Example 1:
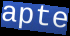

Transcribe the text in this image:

apte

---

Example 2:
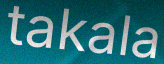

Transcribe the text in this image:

takala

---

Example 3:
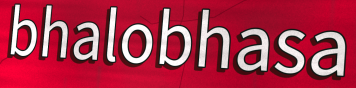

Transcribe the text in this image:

bhalobhasa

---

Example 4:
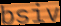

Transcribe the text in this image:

bsiv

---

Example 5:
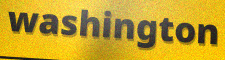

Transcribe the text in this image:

washington